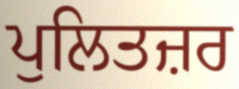
ਪੁਲਿਤਜ਼ਰ